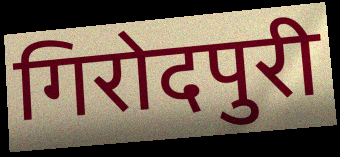
गिरोदपुरी